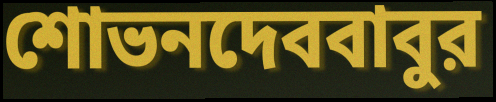
শোভনদেববাবুর